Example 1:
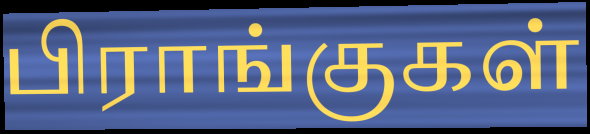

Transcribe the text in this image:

பிராங்குகள்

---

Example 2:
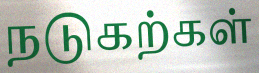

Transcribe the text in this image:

நடுகற்கள்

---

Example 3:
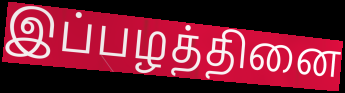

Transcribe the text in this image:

இப்பழத்தினை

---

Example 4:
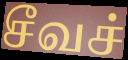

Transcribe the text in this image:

சீவச்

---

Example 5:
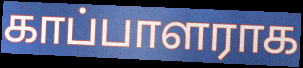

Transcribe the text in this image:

காப்பாளராக